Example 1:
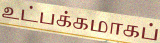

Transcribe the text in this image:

உட்பக்கமாகப்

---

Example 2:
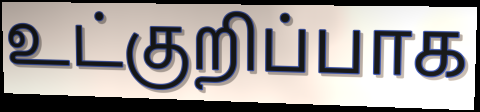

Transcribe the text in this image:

உட்குறிப்பாக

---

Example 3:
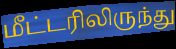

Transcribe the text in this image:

மீட்டரிலிருந்து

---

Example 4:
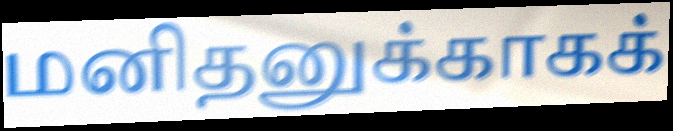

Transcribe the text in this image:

மனிதனுக்காகக்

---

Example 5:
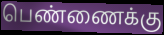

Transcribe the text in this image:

பெண்ணைக்கு